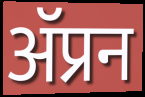
ॲप्रन